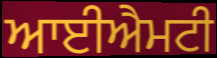
ਆਈਐਮਟੀ